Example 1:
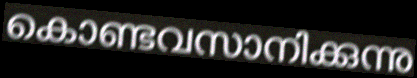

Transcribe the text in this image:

കൊണ്ടവസാനിക്കുന്നു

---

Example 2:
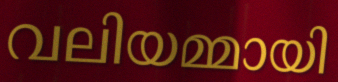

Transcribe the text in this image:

വലിയമ്മായി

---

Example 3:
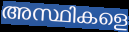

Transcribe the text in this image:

അസ്ഥികളെ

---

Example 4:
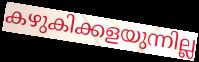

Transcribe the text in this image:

കഴുകിക്കളയുന്നില്ല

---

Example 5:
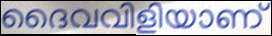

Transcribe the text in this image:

ദൈവവിളിയാണ്